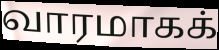
வாரமாகக்